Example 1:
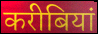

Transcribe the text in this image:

करीबियां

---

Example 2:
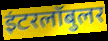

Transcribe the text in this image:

इंटरलॉबुलर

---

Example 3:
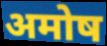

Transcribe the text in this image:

अमोष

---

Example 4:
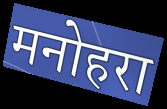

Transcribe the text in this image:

मनोहरा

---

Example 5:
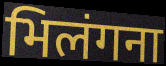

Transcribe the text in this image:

भिलंगना